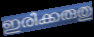
ഇരിക്കരുതു